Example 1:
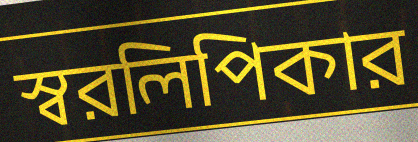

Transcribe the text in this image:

স্বরলিপিকার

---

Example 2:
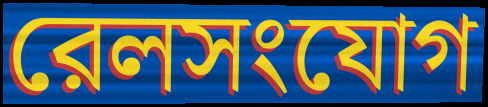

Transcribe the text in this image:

রেলসংযোগ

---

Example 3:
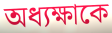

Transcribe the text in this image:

অধ্যক্ষাকে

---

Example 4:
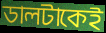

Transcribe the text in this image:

ডালটাকেই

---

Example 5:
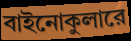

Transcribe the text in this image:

বাইনোকুলারে